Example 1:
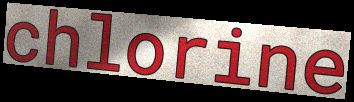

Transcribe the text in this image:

chlorine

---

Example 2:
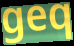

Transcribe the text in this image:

geq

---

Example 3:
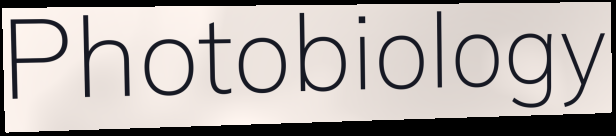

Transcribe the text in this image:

Photobiology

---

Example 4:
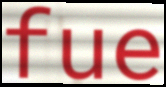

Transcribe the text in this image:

fue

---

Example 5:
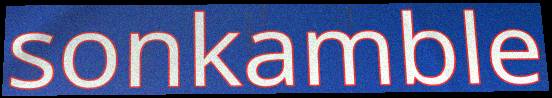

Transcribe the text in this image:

sonkamble